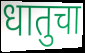
धातुचा